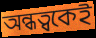
অন্ধত্বকেই